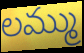
లమ్ము